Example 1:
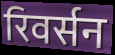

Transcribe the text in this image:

रिवर्सन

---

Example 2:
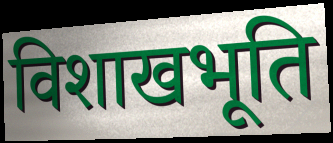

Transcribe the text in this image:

विशाखभूति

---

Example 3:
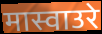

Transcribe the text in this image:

मास्वाउरे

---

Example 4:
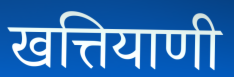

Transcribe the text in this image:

खत्तियाणी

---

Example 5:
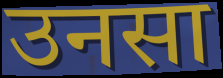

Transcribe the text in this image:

उनसा